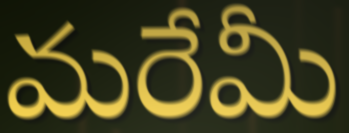
మరేమీ